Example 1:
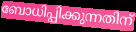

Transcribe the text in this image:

ബോധിപ്പിക്കുന്നതിന്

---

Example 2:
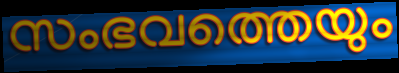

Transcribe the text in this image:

സംഭവത്തെയും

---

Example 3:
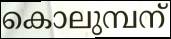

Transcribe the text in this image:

കൊലുമ്പന്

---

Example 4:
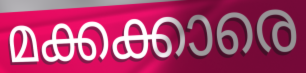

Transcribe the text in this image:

മക്കക്കാരെ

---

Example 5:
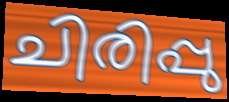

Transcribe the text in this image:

ചിരിപ്പു